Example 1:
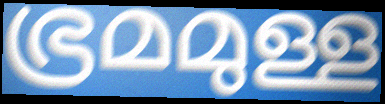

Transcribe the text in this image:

ഭ്രമമുള്ള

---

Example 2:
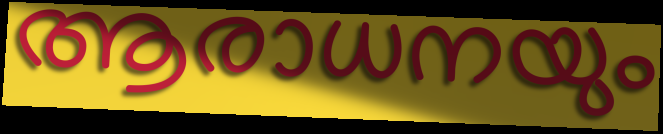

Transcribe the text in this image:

ആരാധനയും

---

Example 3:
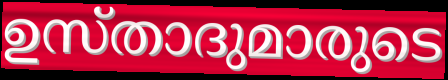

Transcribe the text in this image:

ഉസ്താദുമാരുടെ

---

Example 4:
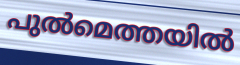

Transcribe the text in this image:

പുൽമെത്തയിൽ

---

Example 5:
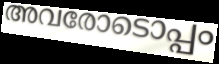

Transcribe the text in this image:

അവരോടൊപ്പം